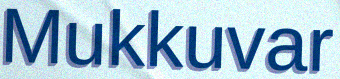
Mukkuvar